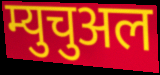
म्युचुअल